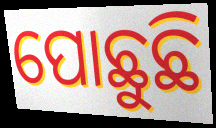
ପୋଛୁଛି